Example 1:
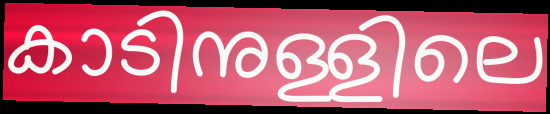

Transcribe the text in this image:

കാടിനുള്ളിലെ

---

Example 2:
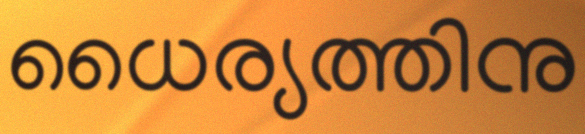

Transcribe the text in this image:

ധൈര്യത്തിനു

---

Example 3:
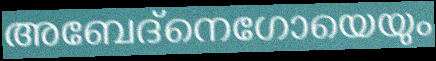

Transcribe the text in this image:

അബേദ്നെഗോയെയും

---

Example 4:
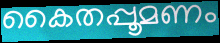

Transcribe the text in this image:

കൈതപ്പൂമണം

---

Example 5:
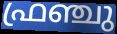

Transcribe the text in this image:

ഫ്രഞ്ചു